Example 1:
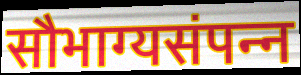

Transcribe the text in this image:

सौभाग्यसंपन्न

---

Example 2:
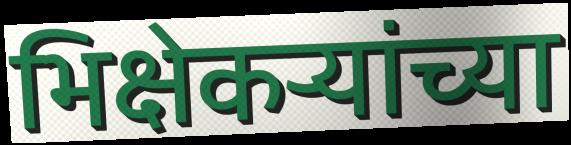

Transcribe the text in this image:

भिक्षेकऱ्यांच्या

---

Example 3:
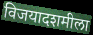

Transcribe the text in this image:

विजयादशमीला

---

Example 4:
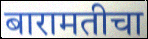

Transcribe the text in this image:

बारामतीचा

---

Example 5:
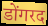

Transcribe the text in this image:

डोंगरद